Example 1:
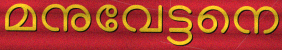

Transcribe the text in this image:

മനുവേട്ടനെ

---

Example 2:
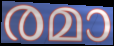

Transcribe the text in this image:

രമാ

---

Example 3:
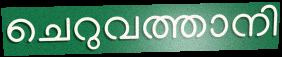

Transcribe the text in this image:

ചെറുവത്താനി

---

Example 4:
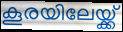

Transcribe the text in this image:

കൂരയിലേയ്ക്ക്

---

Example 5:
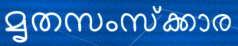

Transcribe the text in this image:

മൃതസംസ്ക്കാര